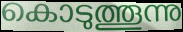
കൊടുത്തൂന്നു